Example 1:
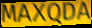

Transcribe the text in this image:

MAXQDA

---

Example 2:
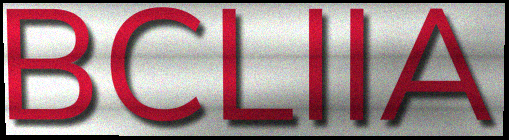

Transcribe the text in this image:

BCLIIA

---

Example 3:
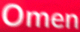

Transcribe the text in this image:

Omen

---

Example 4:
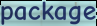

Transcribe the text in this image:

package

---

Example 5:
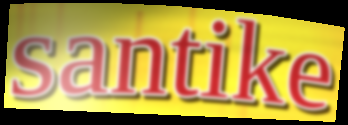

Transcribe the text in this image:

santike